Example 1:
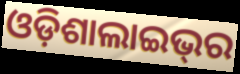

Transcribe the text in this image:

ଓଡ଼ିଶାଲାଇଭ୍‌ର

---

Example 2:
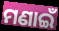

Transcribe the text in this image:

ମଣାଇଁ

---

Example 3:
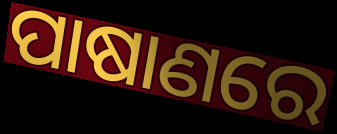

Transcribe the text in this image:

ପାଷାଣରେ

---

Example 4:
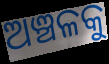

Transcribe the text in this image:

ଅଞ୍ଚଳକୁ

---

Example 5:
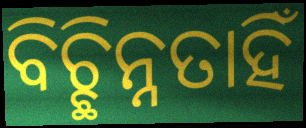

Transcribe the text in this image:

ବିଚ୍ଛିନ୍ନତାହିଁ